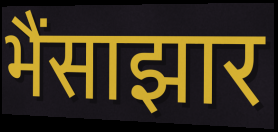
भैंसाझार